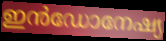
ഇൻഡോനേഷ്യ